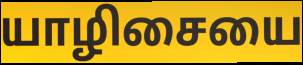
யாழிசையை